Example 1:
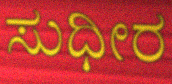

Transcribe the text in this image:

ಸುಧೀರ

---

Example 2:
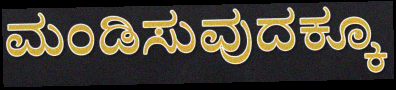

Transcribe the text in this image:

ಮಂಡಿಸುವುದಕ್ಕೂ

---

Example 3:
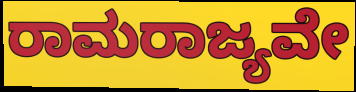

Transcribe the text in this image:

ರಾಮರಾಜ್ಯವೇ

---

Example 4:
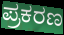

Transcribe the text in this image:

ಪ್ರಕರಣ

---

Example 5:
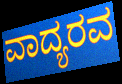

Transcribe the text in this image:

ವಾದ್ಯರವ